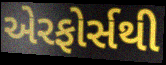
એરફોર્સથી